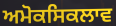
ਅਮੋਕਸਿਕਲਾਵ